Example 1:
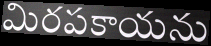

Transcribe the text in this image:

మిరపకాయను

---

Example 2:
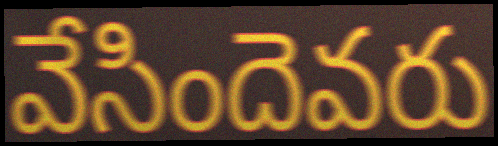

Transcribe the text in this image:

వేసిందెవరు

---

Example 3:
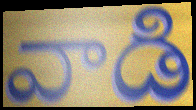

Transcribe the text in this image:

వాడి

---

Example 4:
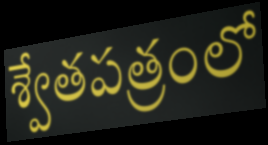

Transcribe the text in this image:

శ్వేతపత్రంలో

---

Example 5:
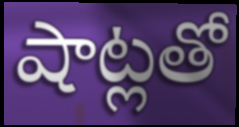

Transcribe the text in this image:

షాట్లతో